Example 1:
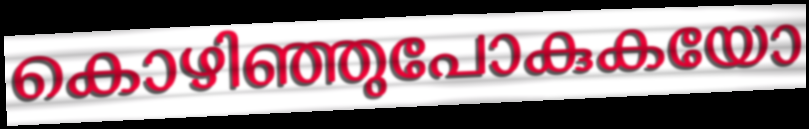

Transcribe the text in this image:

കൊഴിഞ്ഞുപോകുകയോ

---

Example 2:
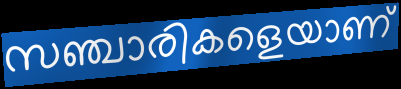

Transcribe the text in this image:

സഞ്ചാരികളെയാണ്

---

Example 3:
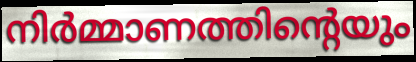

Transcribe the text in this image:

നിർമ്മാണത്തിന്റെയും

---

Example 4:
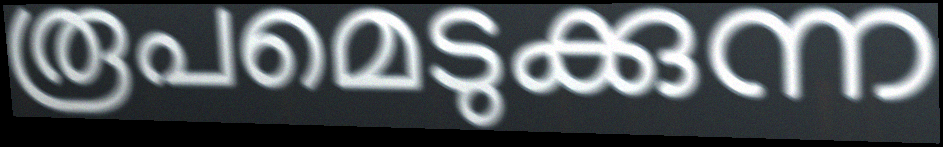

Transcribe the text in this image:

രൂപമെടുക്കുന്ന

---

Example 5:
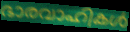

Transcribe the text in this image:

ഭാരവാഹികൾ